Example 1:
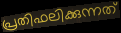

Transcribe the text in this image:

പ്രതിഫലിക്കുന്നത്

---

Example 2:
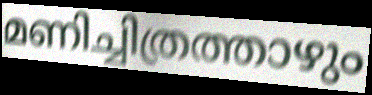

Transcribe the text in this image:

മണിച്ചിത്രത്താഴും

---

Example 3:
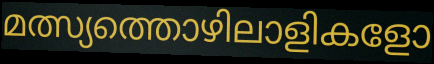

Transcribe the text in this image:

മത്സ്യത്തൊഴിലാളികളോ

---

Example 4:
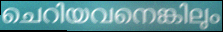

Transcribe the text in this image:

ചെറിയവനെങ്കിലും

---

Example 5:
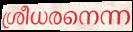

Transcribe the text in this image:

ശ്രീധരനെന്ന